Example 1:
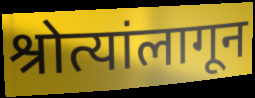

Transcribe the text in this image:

श्रोत्यांलागून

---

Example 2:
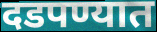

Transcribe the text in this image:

दडपण्यात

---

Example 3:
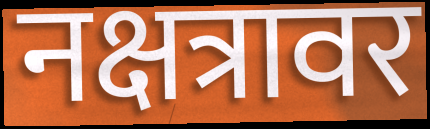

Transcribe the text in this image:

नक्षत्रावर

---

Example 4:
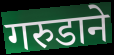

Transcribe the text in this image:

गरुडाने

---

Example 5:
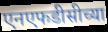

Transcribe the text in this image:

एनएफडीसीच्या